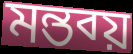
মন্তব্য়